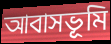
আবাসভূমি